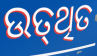
ଉତ୍‍ଥିତ